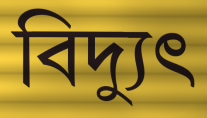
বিদ্যুৎ